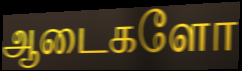
ஆடைகளோ